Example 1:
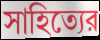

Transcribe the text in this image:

সাহিত্যের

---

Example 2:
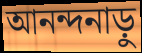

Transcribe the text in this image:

আনন্দনাড়ু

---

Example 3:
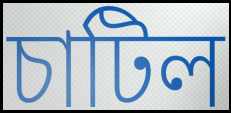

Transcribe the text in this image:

চাটিল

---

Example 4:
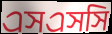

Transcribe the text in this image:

এসএসসি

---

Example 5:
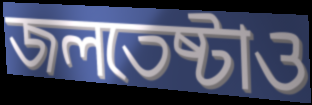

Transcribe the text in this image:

জলতেষ্টাও